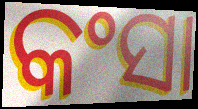
କଂସା